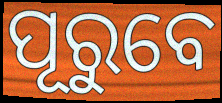
ପୂରୁବେ